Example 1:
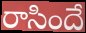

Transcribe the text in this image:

రాసిందే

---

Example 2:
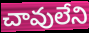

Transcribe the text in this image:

చావులేని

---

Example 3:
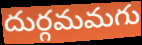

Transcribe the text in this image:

దుర్గమమగు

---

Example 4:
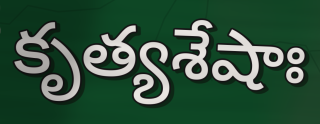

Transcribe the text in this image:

కృత్యశేషాః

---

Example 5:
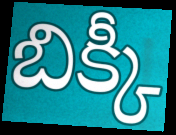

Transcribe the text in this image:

బిక్కీ